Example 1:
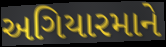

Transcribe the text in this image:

અગિયારમાને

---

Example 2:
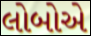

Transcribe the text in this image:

લોબોએ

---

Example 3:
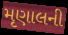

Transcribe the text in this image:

મૃણાલની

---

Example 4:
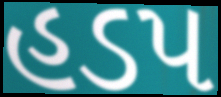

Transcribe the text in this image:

હડપ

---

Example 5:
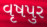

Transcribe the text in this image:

વૃષપુર